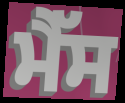
ਮੈੱਸ